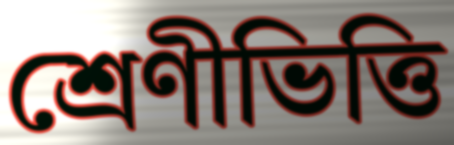
শ্রেণীভিত্তি